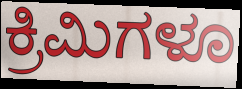
ಕ್ರಿಮಿಗಳೂ